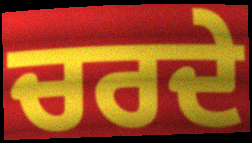
ਚਰਦੇ